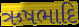
ઋષભાદિ